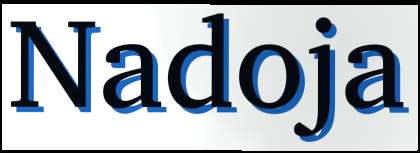
Nadoja